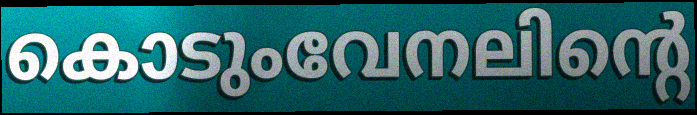
കൊടുംവേനലിന്റെ